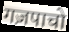
गज़पाचो